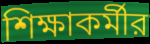
শিক্ষাকর্মীর